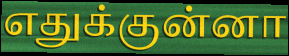
எதுக்குன்னா